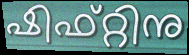
ഷിഫ്റ്റിനു